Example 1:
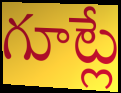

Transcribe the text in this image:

గూట్లే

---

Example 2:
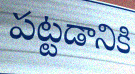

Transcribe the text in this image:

పట్టడానికి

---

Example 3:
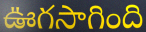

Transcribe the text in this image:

ఊగసాగింది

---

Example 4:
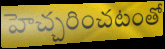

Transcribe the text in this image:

హెచ్చరించటంతో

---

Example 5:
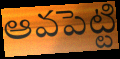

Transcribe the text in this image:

ఆవపెట్టి